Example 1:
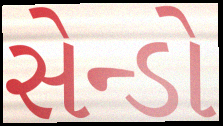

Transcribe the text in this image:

સેન્ડો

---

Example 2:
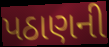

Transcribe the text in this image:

પઠાણની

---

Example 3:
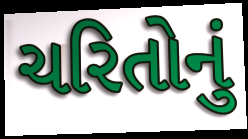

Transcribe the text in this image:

ચરિતોનું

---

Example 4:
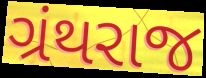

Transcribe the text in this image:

ગ્રંથરાજ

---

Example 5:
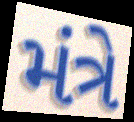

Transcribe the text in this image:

મંત્રે